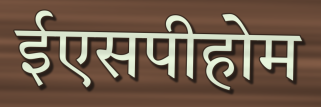
ईएसपीहोम